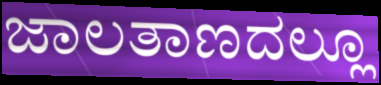
ಜಾಲತಾಣದಲ್ಲೂ